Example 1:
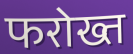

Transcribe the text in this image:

फरोख्‍त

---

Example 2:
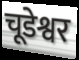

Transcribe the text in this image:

चूडेश्वर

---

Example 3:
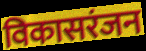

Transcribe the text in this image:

विकासरंजन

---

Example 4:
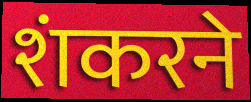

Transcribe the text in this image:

शंकरने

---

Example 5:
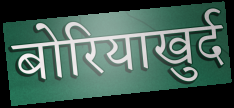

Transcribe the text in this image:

बोरियाखुर्द